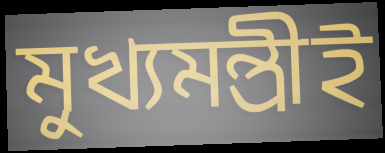
মুখ্যমন্ত্রীই